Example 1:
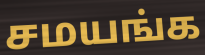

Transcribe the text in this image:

சமயங்க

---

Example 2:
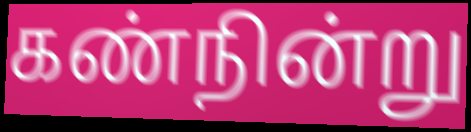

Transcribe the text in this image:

கண்நின்று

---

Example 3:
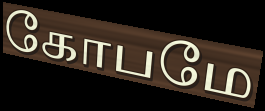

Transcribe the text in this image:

கோபமே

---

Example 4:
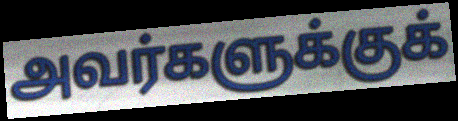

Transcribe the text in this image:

அவர்களுக்குக்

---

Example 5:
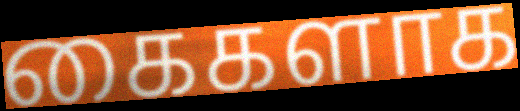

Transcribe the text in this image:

கைகளாக